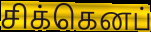
சிக்கெனப்